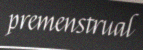
premenstrual